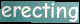
erecting